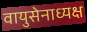
वायुसेनाध्यक्ष